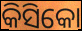
କିସିକୋ